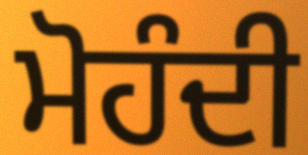
ਮੋਹੰਦੀ